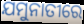
ଯମୁନାତୀରେ